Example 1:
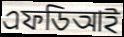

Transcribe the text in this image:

এফডিআই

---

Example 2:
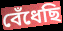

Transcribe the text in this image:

বেঁধেছি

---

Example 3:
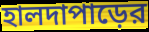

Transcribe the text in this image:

হালদাপাড়ের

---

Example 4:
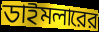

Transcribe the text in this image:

ডাইমলারের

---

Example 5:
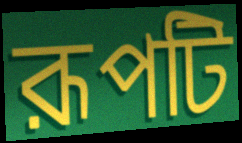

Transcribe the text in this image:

রূপটি